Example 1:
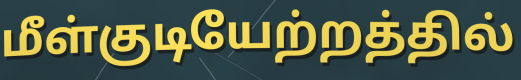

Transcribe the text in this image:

மீள்குடியேற்றத்தில்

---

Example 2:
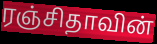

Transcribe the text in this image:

ரஞ்சிதாவின்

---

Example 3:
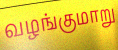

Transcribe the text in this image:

வழங்குமாறு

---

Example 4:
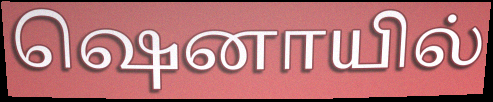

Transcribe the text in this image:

ஷெனாயில்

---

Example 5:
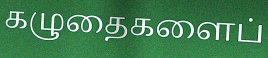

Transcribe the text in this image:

கழுதைகளைப்